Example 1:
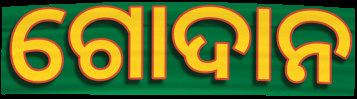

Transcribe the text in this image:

ଗୋଦାନ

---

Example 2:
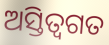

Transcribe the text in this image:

ଅସ୍ତିତ୍ବଗତ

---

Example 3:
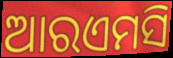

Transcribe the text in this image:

ଆରଏମସି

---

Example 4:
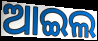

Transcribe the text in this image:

ଆଇଲ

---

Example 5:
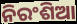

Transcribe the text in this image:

ନିରଂଶିଆ